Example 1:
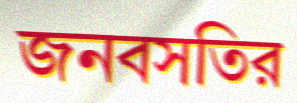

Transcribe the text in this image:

জনবসতির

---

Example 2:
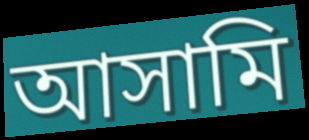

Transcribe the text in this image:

আসামি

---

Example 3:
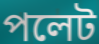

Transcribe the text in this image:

পলেট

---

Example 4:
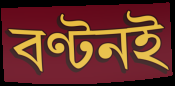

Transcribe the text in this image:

বণ্টনই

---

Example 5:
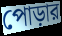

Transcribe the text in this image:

পোড়ার